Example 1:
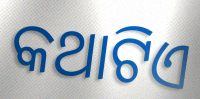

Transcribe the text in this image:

କଥାଟିଏ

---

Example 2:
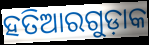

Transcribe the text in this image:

ହତିଆରଗୁଡ଼ାକ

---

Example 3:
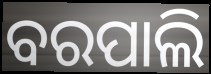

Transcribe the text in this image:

ବରପାଲି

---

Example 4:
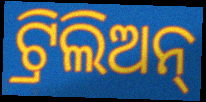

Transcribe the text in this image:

ଟ୍ରିଲିଅନ୍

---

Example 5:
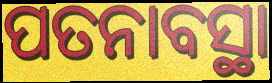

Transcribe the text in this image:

ପତନାବସ୍ଥା